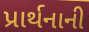
પ્રાર્થનાની